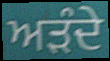
ਅੜੰਦੇ